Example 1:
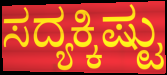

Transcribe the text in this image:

ಸದ್ಯಕ್ಕಿಷ್ಟು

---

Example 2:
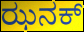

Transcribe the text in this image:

ಝನಕ್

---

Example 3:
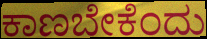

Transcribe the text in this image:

ಕಾಣಬೇಕೆಂದು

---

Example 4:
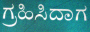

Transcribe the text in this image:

ಗ್ರಹಿಸಿದಾಗ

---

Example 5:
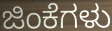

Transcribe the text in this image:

ಜಿಂಕೆಗಳು